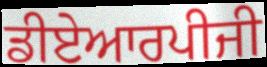
ਡੀਏਆਰਪੀਜੀ